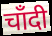
चाँदी